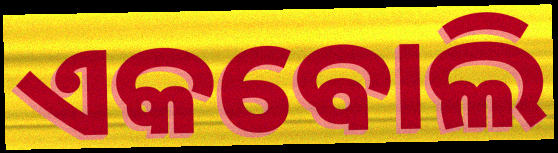
ଏକବୋଲି